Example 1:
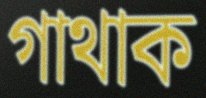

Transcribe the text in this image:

গাথাক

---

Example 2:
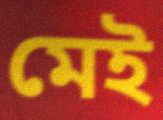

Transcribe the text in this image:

মেই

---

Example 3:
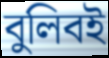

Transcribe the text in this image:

বুলিবই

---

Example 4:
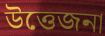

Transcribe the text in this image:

উত্তেজনা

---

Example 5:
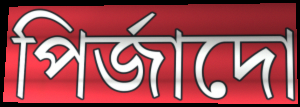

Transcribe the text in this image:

পিৰ্জাদো